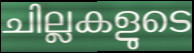
ചില്ലകളുടെ